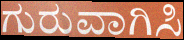
ಗುರುವಾಗಿಸಿ